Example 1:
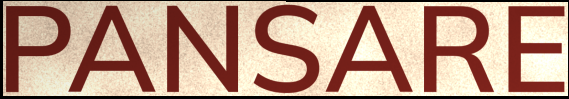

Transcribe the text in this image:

PANSARE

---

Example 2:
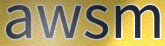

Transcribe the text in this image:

awsm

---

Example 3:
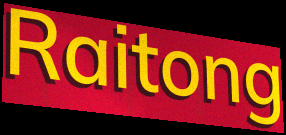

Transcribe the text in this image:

Raitong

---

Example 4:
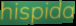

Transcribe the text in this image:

hispida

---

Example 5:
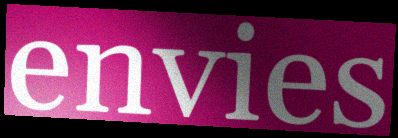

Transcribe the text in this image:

envies